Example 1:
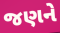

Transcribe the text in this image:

જણને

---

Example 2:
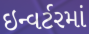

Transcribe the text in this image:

ઇન્વર્ટરમાં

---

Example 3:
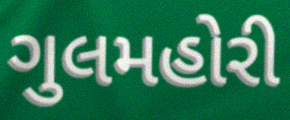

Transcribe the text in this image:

ગુલમહોરી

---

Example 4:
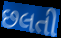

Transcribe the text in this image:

છલતી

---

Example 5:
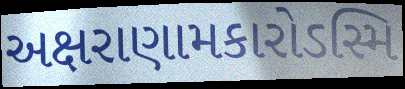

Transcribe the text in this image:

અક્ષરાણામકારોઽસ્મિ